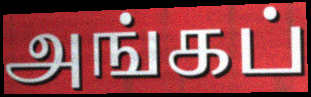
அங்கப்